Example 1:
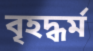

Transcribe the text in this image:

বৃহদ্ধৰ্ম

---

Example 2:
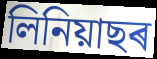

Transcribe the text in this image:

লিনিয়াছৰ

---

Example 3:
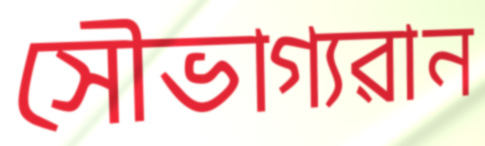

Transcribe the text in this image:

সৌভাগ্যৱান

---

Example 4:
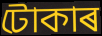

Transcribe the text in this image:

টোকাৰ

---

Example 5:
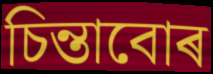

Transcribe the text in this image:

চিন্তাবোৰ